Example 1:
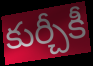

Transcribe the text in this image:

కుర్చీకీ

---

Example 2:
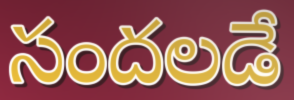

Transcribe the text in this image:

సందలడే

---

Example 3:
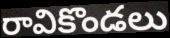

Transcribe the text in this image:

రావికొండలు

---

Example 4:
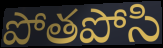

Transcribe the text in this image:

పోతపోసి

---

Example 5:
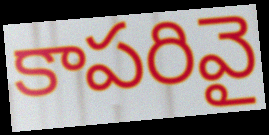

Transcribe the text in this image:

కాపరివై